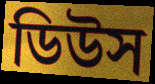
ডিউস